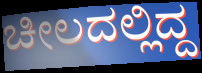
ಚೀಲದಲ್ಲಿದ್ದ